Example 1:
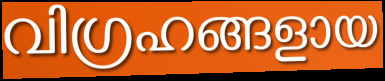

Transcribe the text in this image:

വിഗ്രഹങ്ങളായ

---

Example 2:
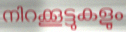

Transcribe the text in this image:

നിറക്കൂട്ടുകളും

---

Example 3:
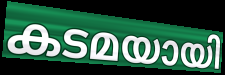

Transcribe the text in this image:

കടമയായി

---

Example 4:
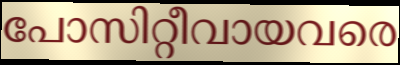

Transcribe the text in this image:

പോസിറ്റീവായവരെ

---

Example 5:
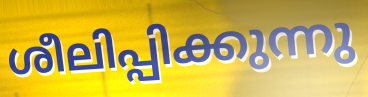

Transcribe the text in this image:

ശീലിപ്പിക്കുന്നു